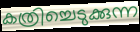
കത്രിച്ചെടുക്കുന്ന